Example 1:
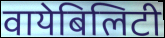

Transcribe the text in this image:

वायेबिलिटी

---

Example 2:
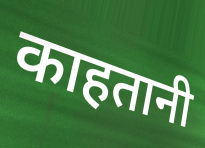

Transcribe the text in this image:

काहतानी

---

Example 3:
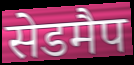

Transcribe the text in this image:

सेडमैप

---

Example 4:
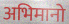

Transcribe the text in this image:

अभिमानो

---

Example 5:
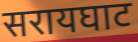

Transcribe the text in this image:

सरायघाट